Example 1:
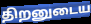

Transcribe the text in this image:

திறனுடைய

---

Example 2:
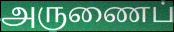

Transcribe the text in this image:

அருணைப்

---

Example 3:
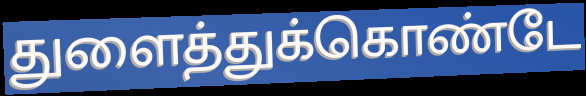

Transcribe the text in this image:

துளைத்துக்கொண்டே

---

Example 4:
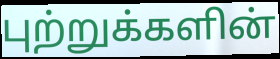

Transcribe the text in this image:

புற்றுக்களின்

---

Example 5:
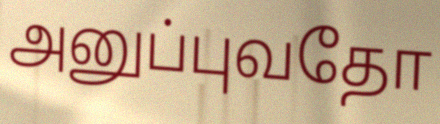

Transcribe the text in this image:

அனுப்புவதோ